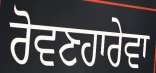
ਰੋਵਣਹਾਰੇਵਾ